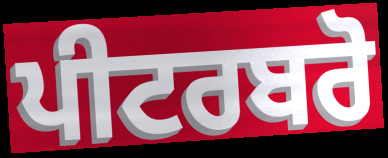
ਪੀਟਰਬਰੋ